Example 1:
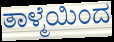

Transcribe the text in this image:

ತಾಳ್ಮೆಯಿಂದ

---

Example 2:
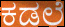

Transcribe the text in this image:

ಕಡಲೆ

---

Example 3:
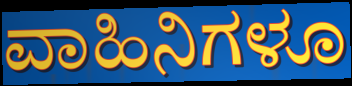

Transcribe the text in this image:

ವಾಹಿನಿಗಳೂ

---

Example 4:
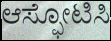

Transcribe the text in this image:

ಆಸ್ಫೋಟಿಸಿ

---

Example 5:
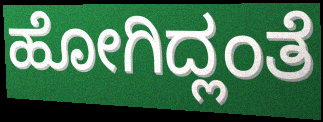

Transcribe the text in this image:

ಹೋಗಿದ್ಲಂತೆ